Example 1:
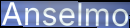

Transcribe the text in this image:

Anselmo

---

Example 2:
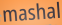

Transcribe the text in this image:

mashal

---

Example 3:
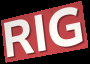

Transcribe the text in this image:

RIG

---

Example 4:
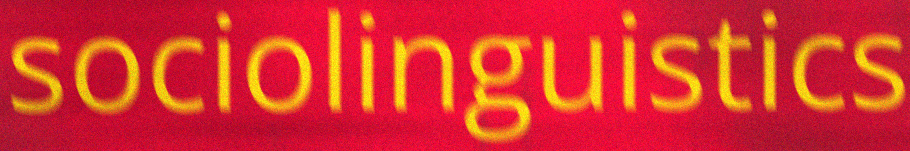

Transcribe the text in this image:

sociolinguistics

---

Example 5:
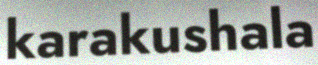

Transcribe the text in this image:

karakushala